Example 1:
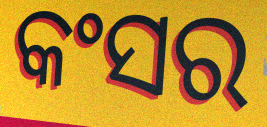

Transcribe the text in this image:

କଂସର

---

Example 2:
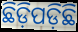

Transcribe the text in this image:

ଛିଡ଼ିପଡ଼ିଛି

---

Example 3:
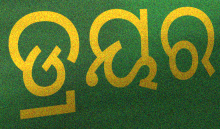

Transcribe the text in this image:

ଡ୍ରୟର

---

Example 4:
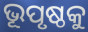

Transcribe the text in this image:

ଭୂପୃଷ୍ଠକୁ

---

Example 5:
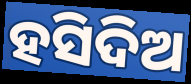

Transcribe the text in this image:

ହସିଦିଅ